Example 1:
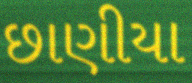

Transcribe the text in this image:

છાણીયા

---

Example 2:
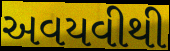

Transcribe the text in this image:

અવયવીથી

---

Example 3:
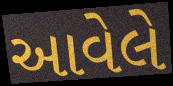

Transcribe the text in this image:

આવેલે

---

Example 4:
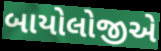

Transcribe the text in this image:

બાયોલોજીએ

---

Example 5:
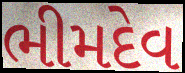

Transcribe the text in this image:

ભીમદેવ